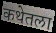
कथेतला